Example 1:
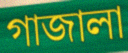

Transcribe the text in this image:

গাজালা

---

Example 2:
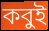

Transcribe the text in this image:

কবুই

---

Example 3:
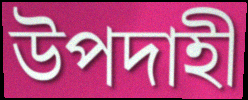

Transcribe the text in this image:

উপদাহী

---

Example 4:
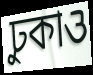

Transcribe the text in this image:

ঢুকাও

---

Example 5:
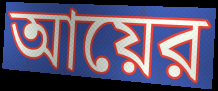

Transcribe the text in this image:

আয়ের